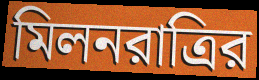
মিলনরাত্রির